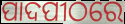
ପାଦପୀଠରେ